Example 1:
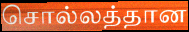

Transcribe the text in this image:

சொல்லத்தான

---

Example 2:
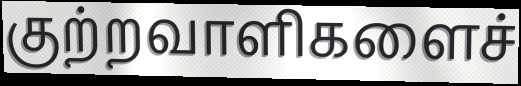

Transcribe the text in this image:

குற்றவாளிகளைச்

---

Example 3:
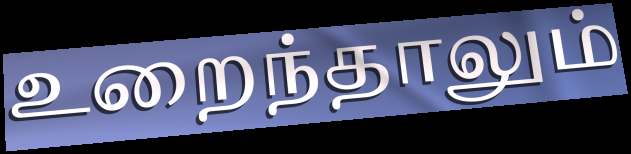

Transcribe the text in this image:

உறைந்தாலும்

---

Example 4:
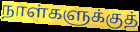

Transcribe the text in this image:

நாள்களுக்குத்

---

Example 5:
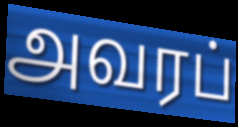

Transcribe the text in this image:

அவரப்